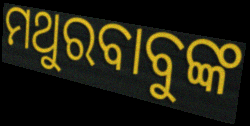
ମଥୁରବାବୁଙ୍କ